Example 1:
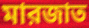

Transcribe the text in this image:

মারজাত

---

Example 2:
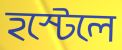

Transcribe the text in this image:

হস্টেলে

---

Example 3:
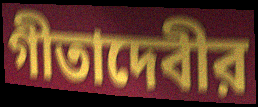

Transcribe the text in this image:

গীতাদেবীর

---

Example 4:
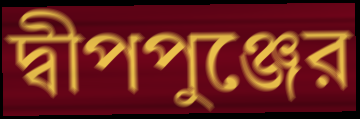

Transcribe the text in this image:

দ্বীপপুঞ্জের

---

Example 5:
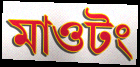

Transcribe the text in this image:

মাওটং